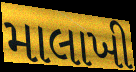
માલાખી